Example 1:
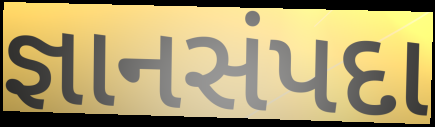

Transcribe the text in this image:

જ્ઞાનસંપદા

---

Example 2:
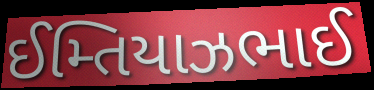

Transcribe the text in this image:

ઈમ્તિયાઝભાઈ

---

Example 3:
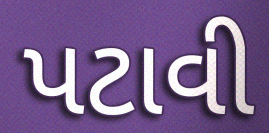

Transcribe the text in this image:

પટાવી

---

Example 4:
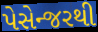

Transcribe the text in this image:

પેસેન્જરથી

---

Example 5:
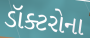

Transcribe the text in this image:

ડૉક્ટરોના